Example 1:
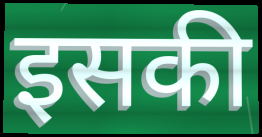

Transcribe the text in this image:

इसकी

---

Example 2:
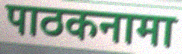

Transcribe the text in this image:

पाठकनामा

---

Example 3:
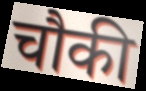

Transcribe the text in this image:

चौकी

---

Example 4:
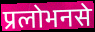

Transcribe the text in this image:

प्रलोभनसे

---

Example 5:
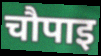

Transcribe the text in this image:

चौपाइ